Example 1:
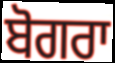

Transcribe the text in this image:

ਬੋਗਰਾ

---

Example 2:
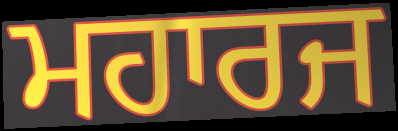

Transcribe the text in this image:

ਮਹਾਰਜ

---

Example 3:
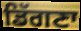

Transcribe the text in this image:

ਡਿੱਗਣਾ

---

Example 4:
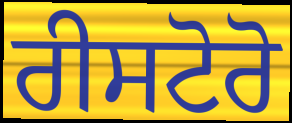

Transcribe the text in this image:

ਰੀਸਟੋਰੋ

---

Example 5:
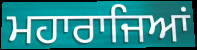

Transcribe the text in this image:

ਮਹਾਰਾਜਿਆਂ